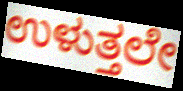
ಉಳುತ್ತಲೇ